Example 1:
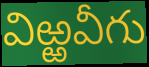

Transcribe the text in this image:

విఱ్ఱవీగు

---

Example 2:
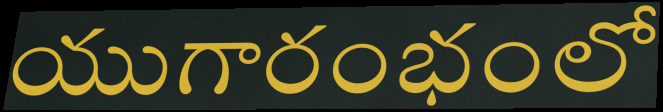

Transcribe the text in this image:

యుగారంభంలో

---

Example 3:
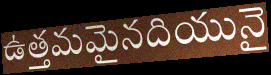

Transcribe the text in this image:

ఉత్తమమైనదియునై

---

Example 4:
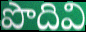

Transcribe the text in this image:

పొదివి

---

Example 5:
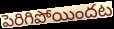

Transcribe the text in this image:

పెరిగిపోయిందట